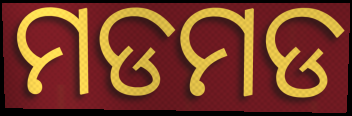
ମଡମଡ